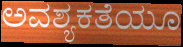
ಅವಶ್ಯಕತೆಯೂ